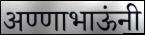
अण्णाभाऊंनी